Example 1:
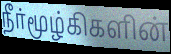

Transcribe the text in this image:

நீர்மூழ்கிகளின்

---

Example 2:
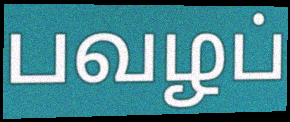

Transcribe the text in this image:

பவழப்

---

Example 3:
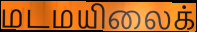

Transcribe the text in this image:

மடமயிலைக்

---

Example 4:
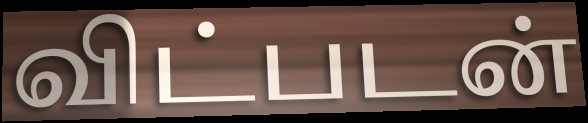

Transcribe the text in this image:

விட்படன்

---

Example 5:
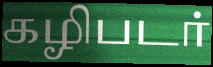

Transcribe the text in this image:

கழிபடர்